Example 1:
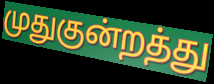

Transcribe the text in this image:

முதுகுன்றத்து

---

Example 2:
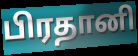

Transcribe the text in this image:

பிரதானி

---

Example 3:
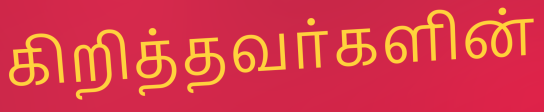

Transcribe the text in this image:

கிறித்தவர்களின்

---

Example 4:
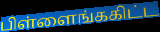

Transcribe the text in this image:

பிள்ளைங்ககிட்ட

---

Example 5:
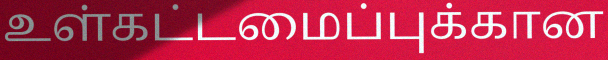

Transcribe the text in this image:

உள்கட்டமைப்புக்கான